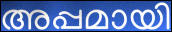
അപ്പമായി